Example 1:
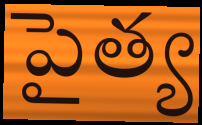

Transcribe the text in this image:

పైత్య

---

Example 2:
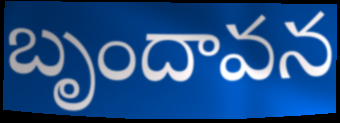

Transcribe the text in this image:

బృందావన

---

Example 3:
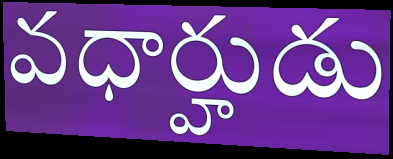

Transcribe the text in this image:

వధార్హుడు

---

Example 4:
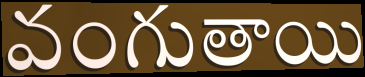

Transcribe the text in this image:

వంగుతాయి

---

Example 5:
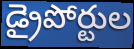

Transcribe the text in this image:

డ్రైపోర్టుల